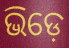
ଭିଡ଼େ